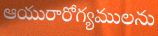
ఆయురారోగ్యములను